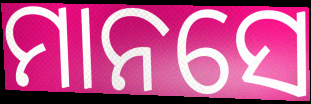
ମାନସେ